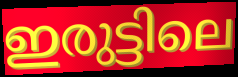
ഇരുട്ടിലെ